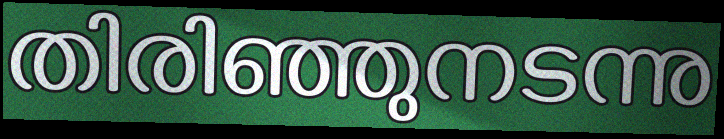
തിരിഞ്ഞുനടന്നു